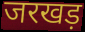
जरखड़